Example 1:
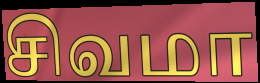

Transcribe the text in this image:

சிவமா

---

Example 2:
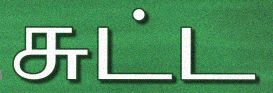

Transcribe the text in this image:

சுட்ட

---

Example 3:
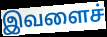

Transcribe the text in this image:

இவளைச்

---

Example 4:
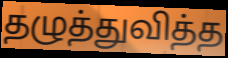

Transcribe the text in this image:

தழுத்துவித்த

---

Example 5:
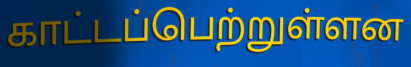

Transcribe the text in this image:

காட்டப்பெற்றுள்ளன